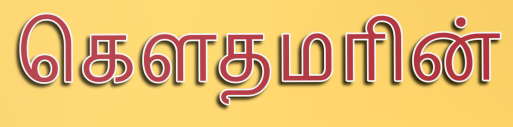
கௌதமரின்